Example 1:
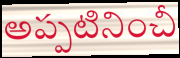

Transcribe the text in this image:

అప్పటినించీ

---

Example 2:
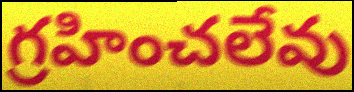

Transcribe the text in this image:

గ్రహించలేవు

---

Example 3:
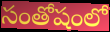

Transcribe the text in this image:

సంతోషంలో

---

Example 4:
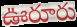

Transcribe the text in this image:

ఊరూరు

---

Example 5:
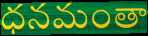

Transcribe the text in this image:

ధనమంతా